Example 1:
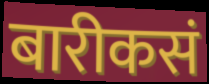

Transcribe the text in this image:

बारीकसं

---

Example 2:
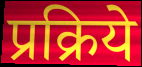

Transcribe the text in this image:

प्रक्रिये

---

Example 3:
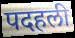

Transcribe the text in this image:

पदहली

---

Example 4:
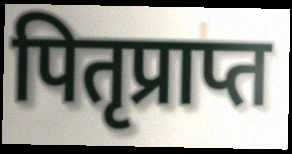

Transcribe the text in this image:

पितृप्राप्त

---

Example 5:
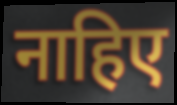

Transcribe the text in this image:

नाहिए